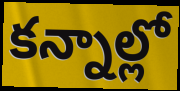
కన్నాల్లో